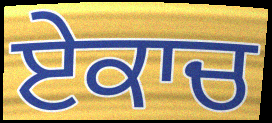
ਏਕਾਚ